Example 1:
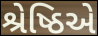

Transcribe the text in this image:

શ્રેષ્ઠિએ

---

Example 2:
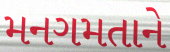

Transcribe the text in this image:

મનગમતાને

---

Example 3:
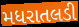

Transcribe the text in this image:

મધરાતલડી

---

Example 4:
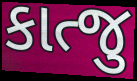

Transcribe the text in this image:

કાત્જુ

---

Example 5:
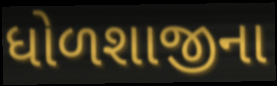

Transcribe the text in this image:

ધોળશાજીના